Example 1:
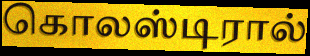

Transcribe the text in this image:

கொலஸ்டிரால்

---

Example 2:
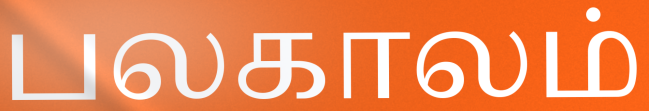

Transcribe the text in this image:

பலகாலம்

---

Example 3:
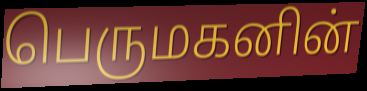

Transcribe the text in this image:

பெருமகனின்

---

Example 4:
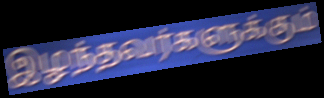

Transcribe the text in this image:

இழந்தவர்களுக்கும்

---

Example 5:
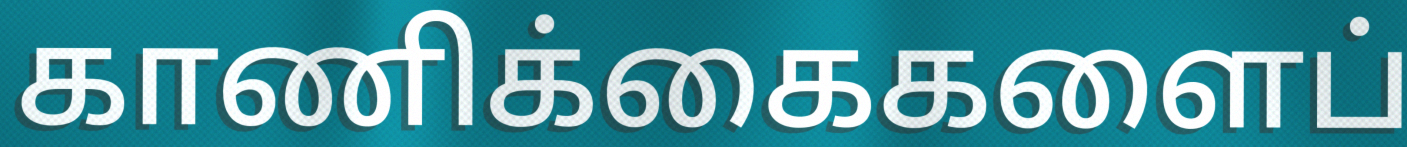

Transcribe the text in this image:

காணிக்கைகளைப்